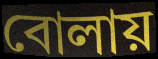
বোলায়